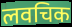
लवचिक